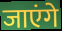
जाएंगे